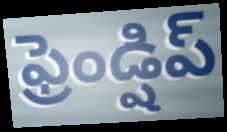
ఫ్రెండ్షిప్